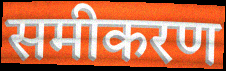
समीकरण